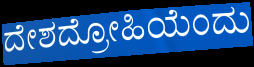
ದೇಶದ್ರೋಹಿಯೆಂದು